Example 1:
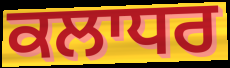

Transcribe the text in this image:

ਕਲਾਧਰ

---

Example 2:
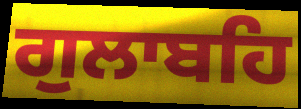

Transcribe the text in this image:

ਗੁਲਾਬਹਿ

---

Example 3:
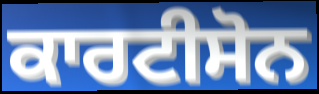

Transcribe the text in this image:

ਕਾਰਟੀਸੋਨ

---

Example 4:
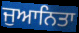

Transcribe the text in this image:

ਜੁਆਨਿਤਾ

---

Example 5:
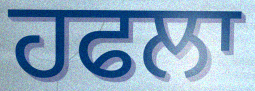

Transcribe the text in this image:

ਹਫਲਾ